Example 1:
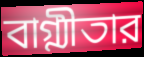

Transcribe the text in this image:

বাগ্মীতার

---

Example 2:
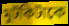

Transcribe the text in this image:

মুটকিটাকে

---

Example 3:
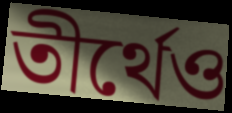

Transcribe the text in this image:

তীর্থেও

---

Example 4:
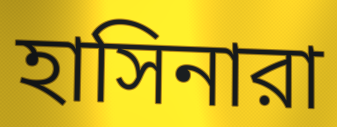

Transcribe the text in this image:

হাসিনারা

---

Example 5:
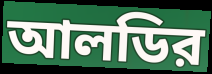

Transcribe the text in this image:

আলডির